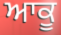
ਆਕੂ